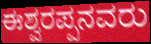
ಈಶ್ವರಪ್ಪನವರು